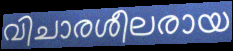
വിചാരശീലരായ